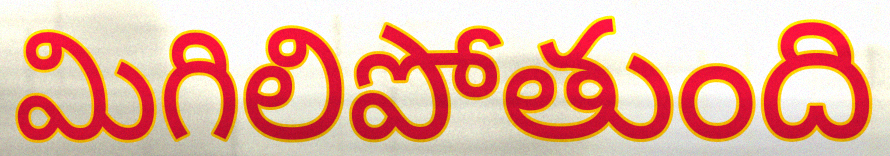
మిగిలిపోతుంది